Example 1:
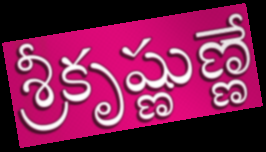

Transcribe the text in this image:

శ్రీకృష్ణుణ్ణే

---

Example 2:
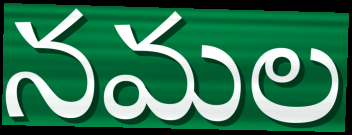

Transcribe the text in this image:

నమల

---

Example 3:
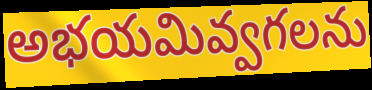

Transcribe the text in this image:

అభయమివ్వగలను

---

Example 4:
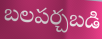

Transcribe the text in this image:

బలపర్చబడి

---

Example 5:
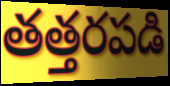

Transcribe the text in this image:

తత్తరపడి